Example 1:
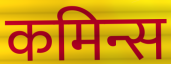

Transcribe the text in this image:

कमिन्स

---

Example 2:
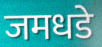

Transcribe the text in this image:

जमधडे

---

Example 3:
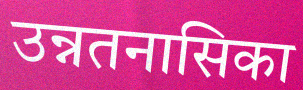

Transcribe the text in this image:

उन्नतनासिका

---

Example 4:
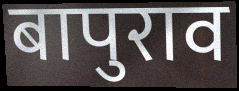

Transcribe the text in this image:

बापुराव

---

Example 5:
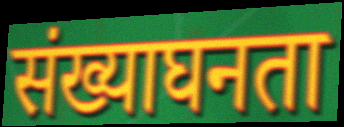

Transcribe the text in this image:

संख्याघनता